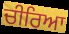
ਚੀਰਿਆ